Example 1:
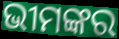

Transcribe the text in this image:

ଭୀମଙ୍କର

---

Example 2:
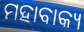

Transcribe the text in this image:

ମହାବାକ୍ୟ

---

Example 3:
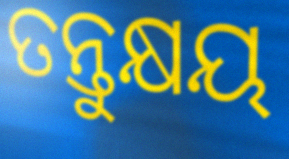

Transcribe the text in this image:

ତନ୍ତୁକ୍ଷୟ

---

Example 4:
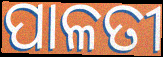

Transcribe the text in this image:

ପାଳତୀ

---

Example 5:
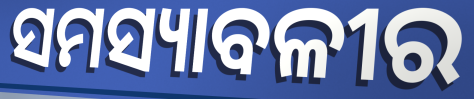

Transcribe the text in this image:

ସମସ୍ୟାବଳୀର